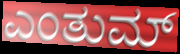
ಎಂತುಮ್